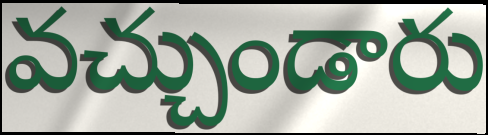
వచ్చుండారు